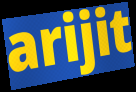
arijit